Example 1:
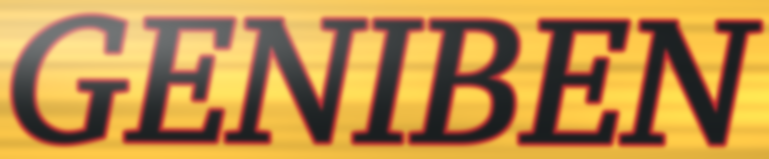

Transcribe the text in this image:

GENIBEN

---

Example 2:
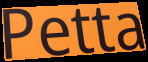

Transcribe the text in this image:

Petta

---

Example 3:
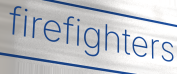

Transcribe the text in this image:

firefighters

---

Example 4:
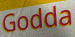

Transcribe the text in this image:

Godda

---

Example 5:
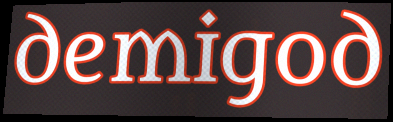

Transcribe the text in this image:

demigod